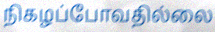
நிகழப்போவதில்லை